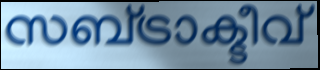
സബ്ട്രാക്ടീവ്